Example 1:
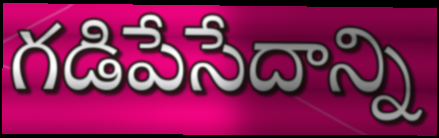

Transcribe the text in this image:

గడిపేసేదాన్ని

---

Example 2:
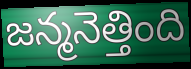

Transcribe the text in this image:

జన్మనెత్తింది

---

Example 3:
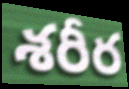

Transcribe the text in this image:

శరీర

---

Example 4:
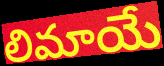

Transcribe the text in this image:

లిమాయే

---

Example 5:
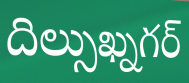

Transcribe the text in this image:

దిల్సుఖ్నగర్